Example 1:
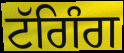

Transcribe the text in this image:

ਟੱਗਿੰਗ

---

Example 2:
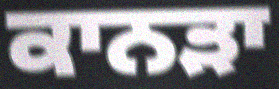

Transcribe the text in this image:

ਕਾਨੜਾ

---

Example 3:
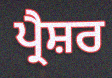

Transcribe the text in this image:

ਪ੍ਰੈਸ਼ਰ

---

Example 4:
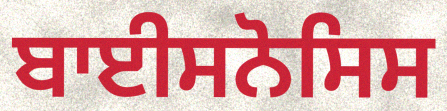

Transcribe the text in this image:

ਬਾਈਸਨੋਸਿਸ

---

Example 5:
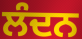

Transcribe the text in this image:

ਲੰਦਨ